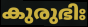
കുരുഭിഃ